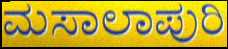
ಮಸಾಲಾಪುರಿ